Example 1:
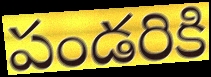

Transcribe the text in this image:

పండరికి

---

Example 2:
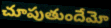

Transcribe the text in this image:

చూపుతుందేమో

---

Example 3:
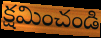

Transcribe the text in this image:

క్షమించండి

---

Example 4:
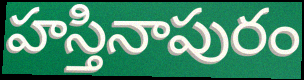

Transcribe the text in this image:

హస్తినాపురం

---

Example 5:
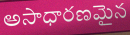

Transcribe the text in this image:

అసాధారణమైన